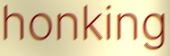
honking